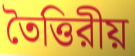
তৈত্তিরীয়